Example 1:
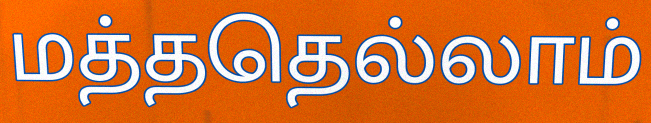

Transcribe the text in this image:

மத்ததெல்லாம்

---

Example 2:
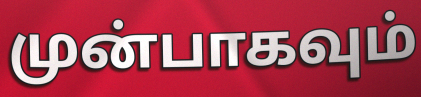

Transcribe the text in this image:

முன்பாகவும்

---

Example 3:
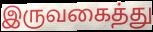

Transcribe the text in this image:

இருவகைத்து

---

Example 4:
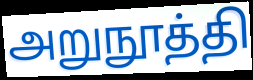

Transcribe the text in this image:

அறுநூத்தி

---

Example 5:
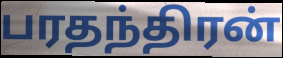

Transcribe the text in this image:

பரதந்திரன்